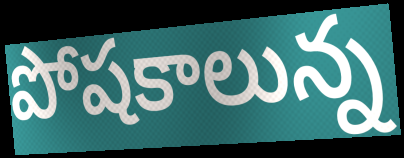
పోషకాలున్న